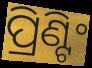
ପ୍ରିଣ୍ଟିଂ